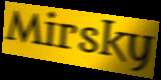
Mirsky